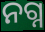
ନଗ୍ନ